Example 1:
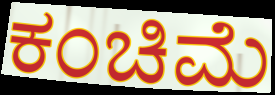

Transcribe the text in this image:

ಕಂಚಿಮೆ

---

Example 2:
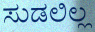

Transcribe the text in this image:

ಸುಡಲಿಲ್ಲ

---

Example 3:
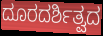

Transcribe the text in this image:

ದೂರದರ್ಶಿತ್ವದ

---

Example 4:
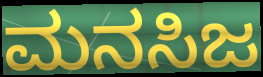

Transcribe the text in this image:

ಮನಸಿಜ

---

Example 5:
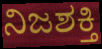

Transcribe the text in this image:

ನಿಜಶಕ್ತಿ